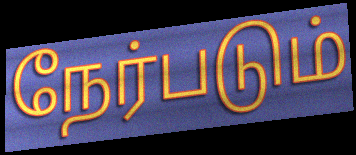
நேர்படும்